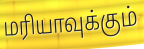
மரியாவுக்கும்